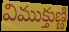
విముక్తుణ్ణి